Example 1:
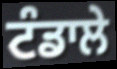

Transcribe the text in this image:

ਟੰਡਾਲੇ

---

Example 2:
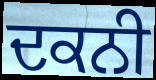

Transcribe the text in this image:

ਦਕਨੀ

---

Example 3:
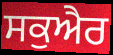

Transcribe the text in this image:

ਸਕੁਐਰ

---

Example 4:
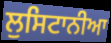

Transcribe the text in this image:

ਲੁਸਿਟਾਨੀਆ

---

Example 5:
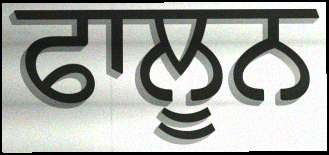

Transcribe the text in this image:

ਫਾਲੂਨ